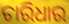
ଚାରିଧାର